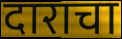
दाराचा